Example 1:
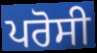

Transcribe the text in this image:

ਪਰੋਸੀ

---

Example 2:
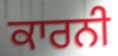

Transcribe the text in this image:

ਕਾਰਨੀ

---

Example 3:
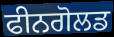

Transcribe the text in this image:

ਫੀਨਗੋਲਡ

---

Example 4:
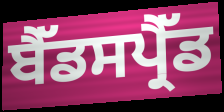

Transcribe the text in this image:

ਬੈੱਡਸਪ੍ਰੈੱਡ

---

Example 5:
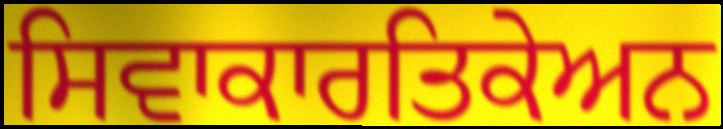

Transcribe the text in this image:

ਸਿਵਾਕਾਰਤਿਕੇਅਨ